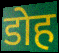
डोह